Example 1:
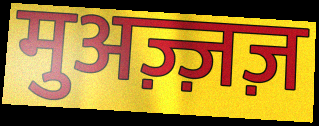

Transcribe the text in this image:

मुअज़्ज़ज़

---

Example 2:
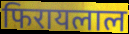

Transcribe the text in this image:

फिरायलाल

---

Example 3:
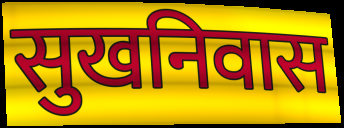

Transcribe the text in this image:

सुखनिवास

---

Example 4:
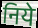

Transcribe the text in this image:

निये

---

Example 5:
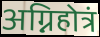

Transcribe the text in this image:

अग्निहोत्रं